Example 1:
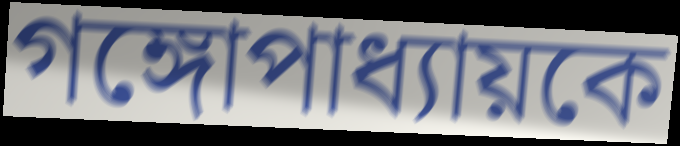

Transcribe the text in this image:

গঙ্গোপাধ্যায়কে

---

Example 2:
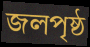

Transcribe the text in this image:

জলপৃষ্ঠ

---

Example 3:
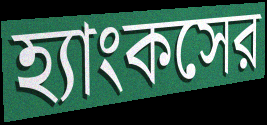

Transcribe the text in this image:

হ্যাংকসের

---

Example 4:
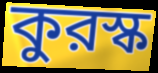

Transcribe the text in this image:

কুরস্ক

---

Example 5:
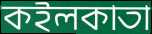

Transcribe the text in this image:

কইলকাতা